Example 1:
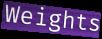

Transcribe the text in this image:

Weights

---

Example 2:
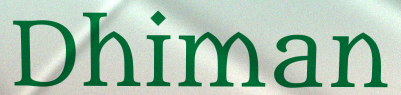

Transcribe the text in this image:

Dhiman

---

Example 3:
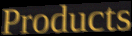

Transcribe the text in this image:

Products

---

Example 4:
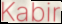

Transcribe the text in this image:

Kabir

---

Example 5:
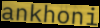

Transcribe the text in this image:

ankhoni